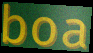
boa